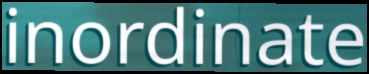
inordinate